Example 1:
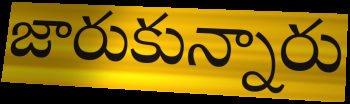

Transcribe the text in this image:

జారుకున్నారు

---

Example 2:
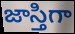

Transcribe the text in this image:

జాస్తిగా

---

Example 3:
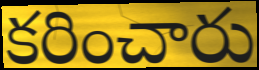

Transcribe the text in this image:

కరించారు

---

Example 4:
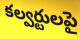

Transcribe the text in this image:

కల్వర్టులపై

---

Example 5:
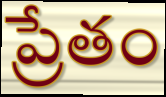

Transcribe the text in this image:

ప్రేతం